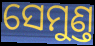
ସେମୁଣ୍ତ